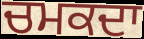
ਚਮਕਦਾ